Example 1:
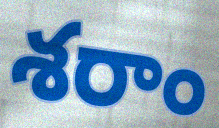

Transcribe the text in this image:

శరాం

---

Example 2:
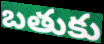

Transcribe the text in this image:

బతుకు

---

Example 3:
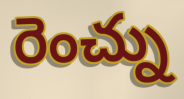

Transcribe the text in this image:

రెంచ్ను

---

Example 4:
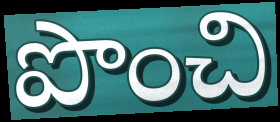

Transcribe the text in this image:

పొంచి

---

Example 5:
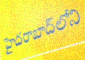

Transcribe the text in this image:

హైదరాబాద్‌లోని